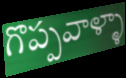
గొప్పవాళ్ళా